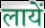
लायें